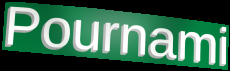
Pournami